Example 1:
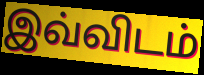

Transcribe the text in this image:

இவ்விடம்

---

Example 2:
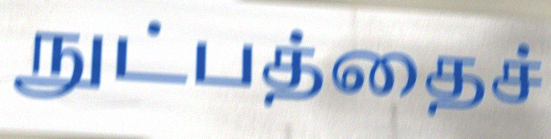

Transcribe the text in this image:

நுட்பத்தைச்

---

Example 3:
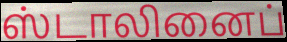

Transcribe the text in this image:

ஸ்டாலினைப்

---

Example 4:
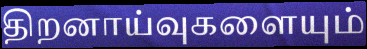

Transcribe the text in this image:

திறனாய்வுகளையும்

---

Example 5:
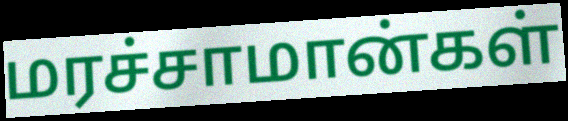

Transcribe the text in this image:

மரச்சாமான்கள்